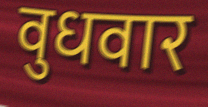
वुधवार